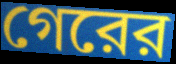
গেরের